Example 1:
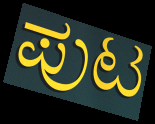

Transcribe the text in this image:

ಪುಟ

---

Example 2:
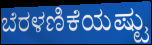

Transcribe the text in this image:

ಬೆರಳಣಿಕೆಯಷ್ಟು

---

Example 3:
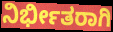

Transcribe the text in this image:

ನಿರ್ಭೀತರಾಗಿ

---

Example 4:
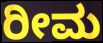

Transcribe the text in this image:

ರೀಮ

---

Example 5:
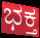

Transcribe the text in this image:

ಭಕ್ತ